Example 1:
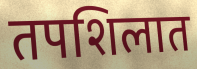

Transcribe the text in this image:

तपशिलात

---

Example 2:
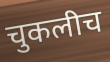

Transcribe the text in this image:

चुकलीच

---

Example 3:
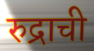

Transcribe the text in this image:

रुद्राची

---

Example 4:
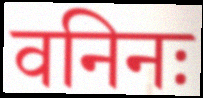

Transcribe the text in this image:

वनिनः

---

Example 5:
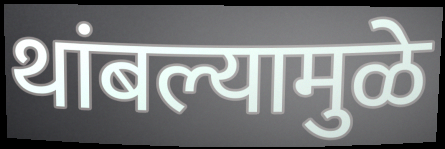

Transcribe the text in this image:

थांबल्यामुळे